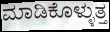
ಮಾಡಿಕೊಳ್ಳುತ್ತ